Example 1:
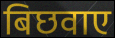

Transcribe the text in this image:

बिछवाए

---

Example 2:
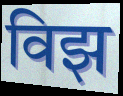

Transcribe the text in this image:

विझ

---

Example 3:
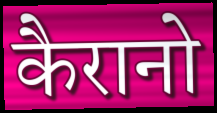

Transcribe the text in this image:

कैरानो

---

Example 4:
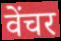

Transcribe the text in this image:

वेंचर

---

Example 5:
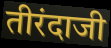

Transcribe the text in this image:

तीरंदाजी